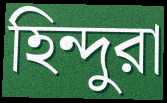
হিন্দুরা